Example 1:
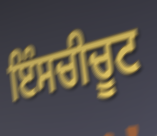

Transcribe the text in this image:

ਇੰਸਚੀਚੂਟ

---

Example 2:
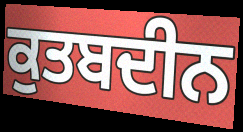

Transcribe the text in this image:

ਕੁਤਬਦੀਨ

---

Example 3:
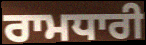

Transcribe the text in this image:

ਰਾਮਧਾਰੀ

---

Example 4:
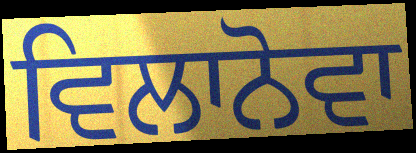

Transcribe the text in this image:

ਵਿਲਾਨੋਵਾ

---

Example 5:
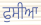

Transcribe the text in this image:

ਫੁਸੀਆ